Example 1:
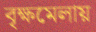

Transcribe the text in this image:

বৃক্ষমেলায়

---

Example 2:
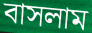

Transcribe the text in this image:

বাসলাম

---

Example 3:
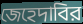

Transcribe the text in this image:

জেহেদাবির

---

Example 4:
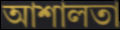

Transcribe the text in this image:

আশালতা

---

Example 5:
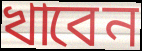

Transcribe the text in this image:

খাবেন